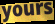
yours